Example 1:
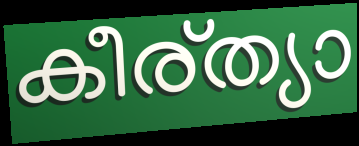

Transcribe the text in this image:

കീര്ത്യാ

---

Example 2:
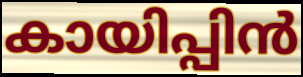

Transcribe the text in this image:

കായിപ്പിൻ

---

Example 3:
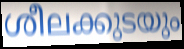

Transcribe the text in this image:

ശീലക്കുടയും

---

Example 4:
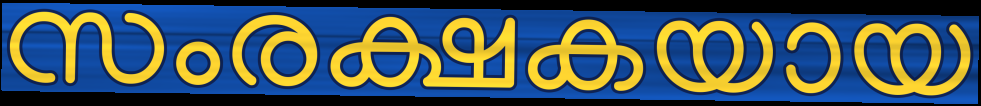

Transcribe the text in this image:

സംരക്ഷകയായ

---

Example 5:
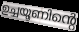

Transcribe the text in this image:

ഉച്ചയൂണിന്റെ